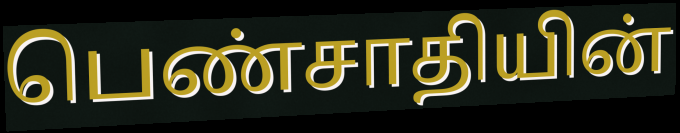
பெண்சாதியின்